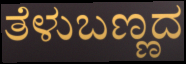
ತೆಳುಬಣ್ಣದ